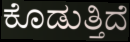
ಕೊಡುತ್ತಿದೆ